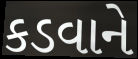
કડવાને